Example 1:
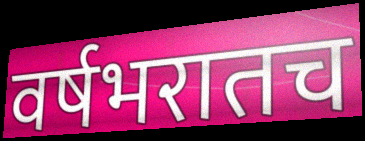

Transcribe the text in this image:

वर्षभरातच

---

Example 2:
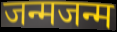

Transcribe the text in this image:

जन्मजन्म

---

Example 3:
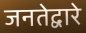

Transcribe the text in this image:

जनतेद्वारे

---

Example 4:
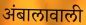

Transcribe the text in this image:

अंबालावाली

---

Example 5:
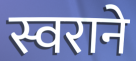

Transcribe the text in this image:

स्वराने